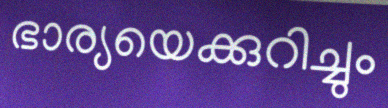
ഭാര്യയെക്കുറിച്ചും